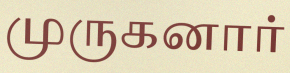
முருகனார்